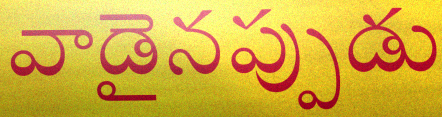
వాడైనప్పుడు